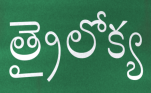
త్రైలోక్య